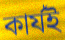
কার্যই